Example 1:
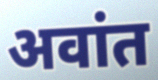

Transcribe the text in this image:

अवांत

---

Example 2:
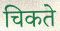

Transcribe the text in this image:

चिकते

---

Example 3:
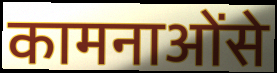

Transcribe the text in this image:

कामनाओंसे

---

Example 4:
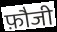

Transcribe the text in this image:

फ़ौजी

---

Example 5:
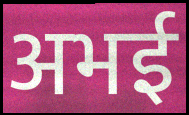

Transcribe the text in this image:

अभई